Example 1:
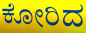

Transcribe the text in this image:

ಕೋರಿದ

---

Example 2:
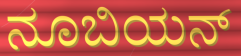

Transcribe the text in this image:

ನೂಬಿಯನ್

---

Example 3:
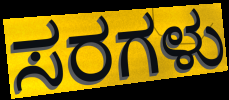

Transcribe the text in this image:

ಸರಗಳು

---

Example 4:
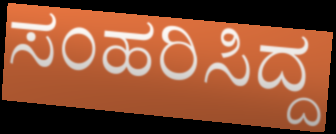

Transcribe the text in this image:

ಸಂಹರಿಸಿದ್ದ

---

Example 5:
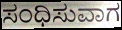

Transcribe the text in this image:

ಸಂಧಿಸುವಾಗ